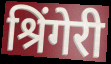
श्रिंगेरी